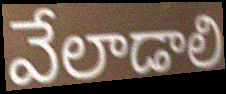
వేలాడాలి